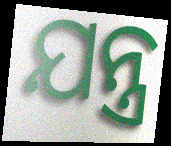
ଯନ୍ତ୍ର